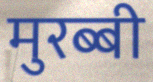
मुरब्बी